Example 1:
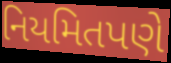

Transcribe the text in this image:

નિયમિતપણે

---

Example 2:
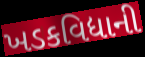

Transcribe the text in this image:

ખડકવિદ્યાની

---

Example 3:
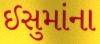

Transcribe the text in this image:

ઈસુમાંના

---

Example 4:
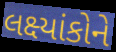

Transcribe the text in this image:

લક્ષ્યાંકોને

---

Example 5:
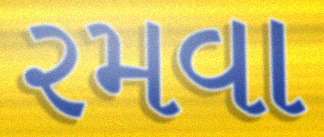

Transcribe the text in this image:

રમવા